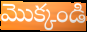
మొక్కండి